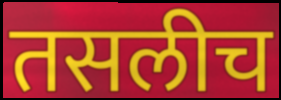
तसलीच